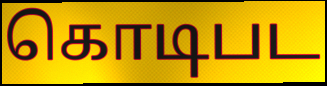
கொடிபட